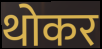
थोकर